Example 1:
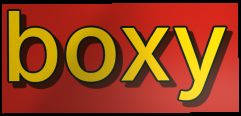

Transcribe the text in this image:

boxy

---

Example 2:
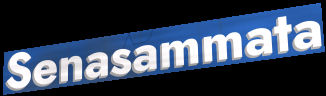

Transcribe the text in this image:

Senasammata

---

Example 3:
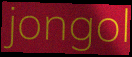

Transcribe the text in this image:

jongol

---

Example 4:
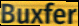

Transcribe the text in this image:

Buxfer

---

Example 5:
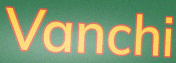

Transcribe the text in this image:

Vanchi